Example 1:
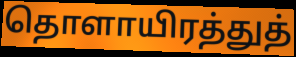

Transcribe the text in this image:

தொளாயிரத்துத்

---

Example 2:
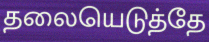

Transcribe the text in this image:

தலையெடுத்தே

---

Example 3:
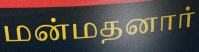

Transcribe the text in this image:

மன்மதனார்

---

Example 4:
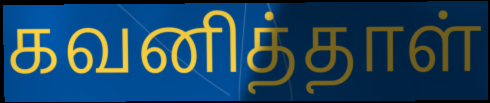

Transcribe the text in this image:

கவனித்தாள்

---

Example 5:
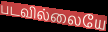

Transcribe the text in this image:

படவில்லையே